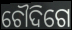
ଚୌଦିଗେ